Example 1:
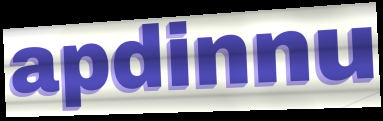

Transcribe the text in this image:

apdinnu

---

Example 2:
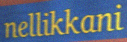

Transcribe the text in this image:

nellikkani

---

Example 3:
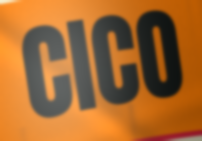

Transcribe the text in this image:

CICO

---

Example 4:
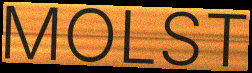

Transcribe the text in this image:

MOLST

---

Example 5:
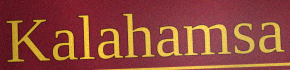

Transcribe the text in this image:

Kalahamsa